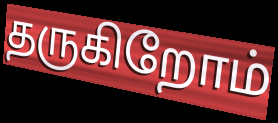
தருகிறோம்